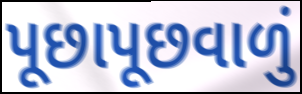
પૂછાપૂછવાળું